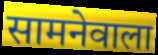
सामनेवाला